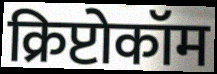
क्रिप्टोकॉम